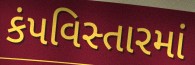
કંપવિસ્તારમાં